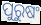
ପୁରୁଷଂ